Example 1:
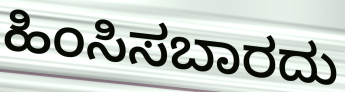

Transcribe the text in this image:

ಹಿಂಸಿಸಬಾರದು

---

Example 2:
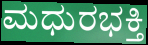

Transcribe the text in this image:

ಮಧುರಭಕ್ತಿ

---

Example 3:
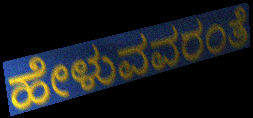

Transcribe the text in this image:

ಹೇಳುವವರಂತೆ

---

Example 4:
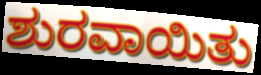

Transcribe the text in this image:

ಶುರವಾಯಿತು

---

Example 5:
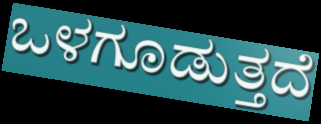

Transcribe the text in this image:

ಒಳಗೂಡುತ್ತದೆ